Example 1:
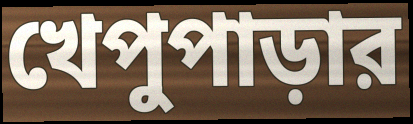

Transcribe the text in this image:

খেপুপাড়ার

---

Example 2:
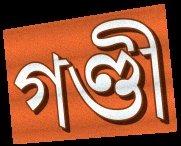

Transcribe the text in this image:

গণ্ডী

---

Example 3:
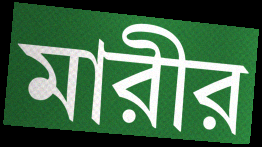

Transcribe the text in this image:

মারীর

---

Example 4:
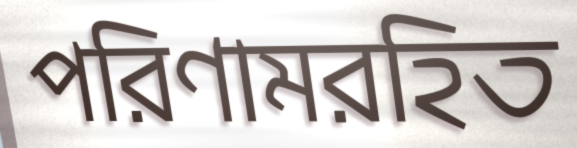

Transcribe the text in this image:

পরিণামরহিত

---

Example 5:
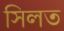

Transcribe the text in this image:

সিলত